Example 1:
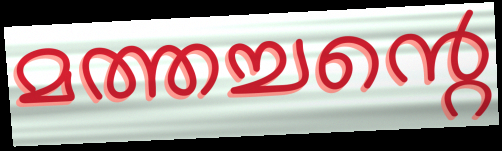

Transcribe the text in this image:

മത്തച്ചന്റെ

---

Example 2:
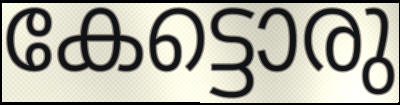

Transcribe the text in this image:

കേട്ടൊരു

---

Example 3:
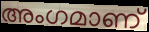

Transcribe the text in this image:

അംഗമാണ്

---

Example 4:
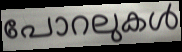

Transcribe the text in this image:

പോറലുകൾ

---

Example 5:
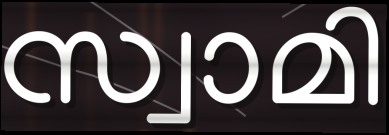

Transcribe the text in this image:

സ്വാമി